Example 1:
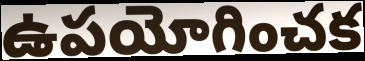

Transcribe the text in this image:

ఉపయోగించక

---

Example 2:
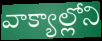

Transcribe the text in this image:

వాక్యాల్లోని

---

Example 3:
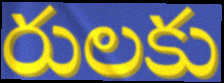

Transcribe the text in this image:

రులకు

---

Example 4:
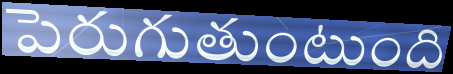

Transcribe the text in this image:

పెరుగుతుంటుంది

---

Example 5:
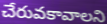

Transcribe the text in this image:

చేరువకావాలని